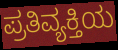
ಪ್ರತಿವ್ಯಕ್ತಿಯ